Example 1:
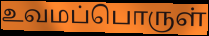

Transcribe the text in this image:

உவமப்பொருள்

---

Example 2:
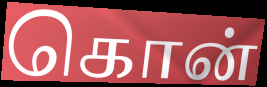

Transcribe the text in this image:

கொன்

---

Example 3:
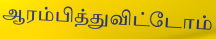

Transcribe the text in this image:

ஆரம்பித்துவிட்டோம்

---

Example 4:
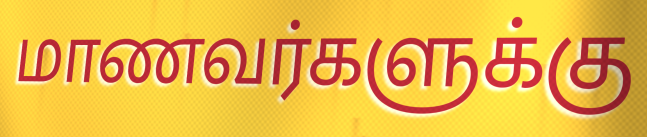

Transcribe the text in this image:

மாணவர்களுக்கு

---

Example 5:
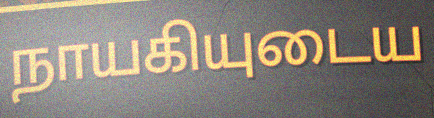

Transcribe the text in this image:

நாயகியுடைய